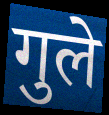
गुले